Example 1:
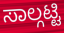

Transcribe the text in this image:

ಸಾಲ್ಗಟ್ಟಿ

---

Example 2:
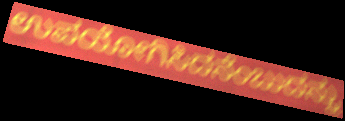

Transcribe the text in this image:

ಉಪಯೋಗಿಸಿದನೆಂಬುದನ್ನು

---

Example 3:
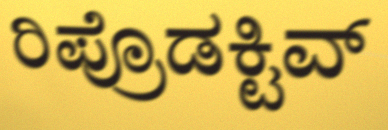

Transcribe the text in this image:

ರಿಪ್ರೊಡಕ್ಟಿವ್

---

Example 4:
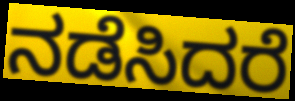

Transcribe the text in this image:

ನಡೆಸಿದರೆ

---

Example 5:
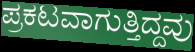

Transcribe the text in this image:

ಪ್ರಕಟವಾಗುತ್ತಿದ್ದವು